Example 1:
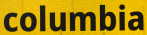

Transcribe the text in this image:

columbia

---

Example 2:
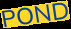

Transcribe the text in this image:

POND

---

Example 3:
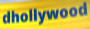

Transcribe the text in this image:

dhollywood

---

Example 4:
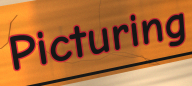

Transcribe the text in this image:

Picturing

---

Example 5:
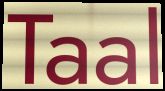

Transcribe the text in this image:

Taal